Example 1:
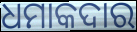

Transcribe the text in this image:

ଧମାକଦାର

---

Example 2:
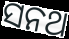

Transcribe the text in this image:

ସନଥ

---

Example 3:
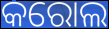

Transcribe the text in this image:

କରୋଲ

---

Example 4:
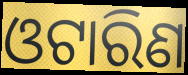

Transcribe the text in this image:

ଓଟାରିଣ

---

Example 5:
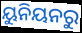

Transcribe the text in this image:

ୟୁନିୟନରୁ